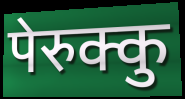
पेरुक्कु